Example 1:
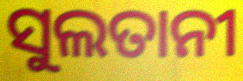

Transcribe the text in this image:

ସୁଲତାନୀ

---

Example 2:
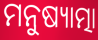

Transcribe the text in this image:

ମନୁଷ୍ୟାତ୍ମା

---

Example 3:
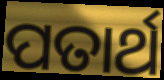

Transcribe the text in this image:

ପତାର୍ଥ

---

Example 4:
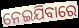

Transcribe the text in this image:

ନେଇଯିବାରେ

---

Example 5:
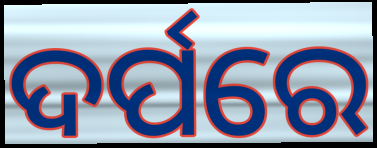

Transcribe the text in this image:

ଦର୍ପରେ